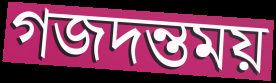
গজদন্তময়